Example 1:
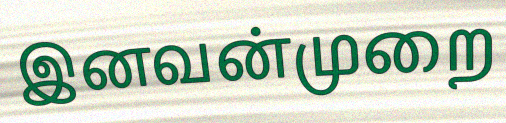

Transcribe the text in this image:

இனவன்முறை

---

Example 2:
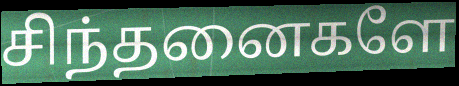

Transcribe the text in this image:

சிந்தனைகளே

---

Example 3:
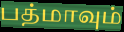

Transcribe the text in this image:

பத்மாவும்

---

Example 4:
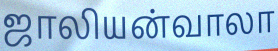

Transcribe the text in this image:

ஜாலியன்வாலா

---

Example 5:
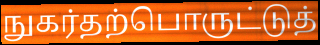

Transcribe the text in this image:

நுகர்தற்பொருட்டுத்